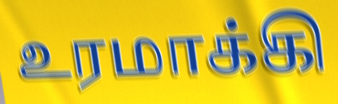
உரமாக்கி